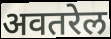
अवतरेल